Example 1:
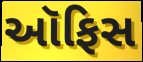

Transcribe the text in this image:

આૅફિસ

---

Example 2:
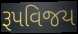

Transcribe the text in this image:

રૂપવિજય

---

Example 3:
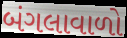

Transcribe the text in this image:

બંગલાવાળો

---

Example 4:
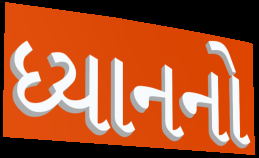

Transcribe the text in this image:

ધ્યાનનો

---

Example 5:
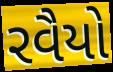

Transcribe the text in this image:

રવૈયો